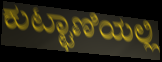
ಕುಟ್ಟಾಣಿಯಲ್ಲಿ